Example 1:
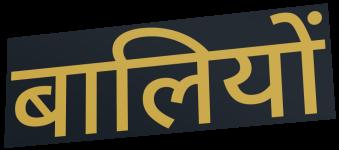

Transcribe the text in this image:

बालियों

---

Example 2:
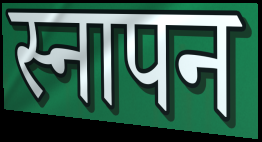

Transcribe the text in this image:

स्नापन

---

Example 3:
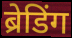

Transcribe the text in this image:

ब्रेडिंग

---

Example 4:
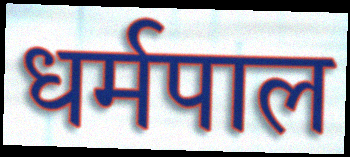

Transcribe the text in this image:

धर्मपाल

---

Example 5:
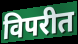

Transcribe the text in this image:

विपरीत